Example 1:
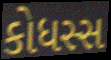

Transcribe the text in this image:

કોધસ્સ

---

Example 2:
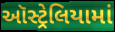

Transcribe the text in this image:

ઑસ્ટ્રેલિયામાં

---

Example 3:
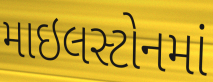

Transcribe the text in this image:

માઇલસ્ટોનમાં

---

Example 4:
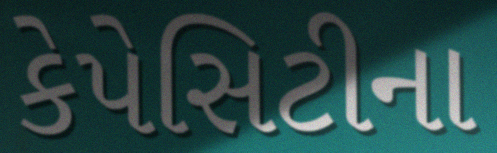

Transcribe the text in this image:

કેપેસિટીના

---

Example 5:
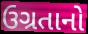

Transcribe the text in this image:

ઉગ્રતાનો